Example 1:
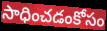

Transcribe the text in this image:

సాధించడంకోసం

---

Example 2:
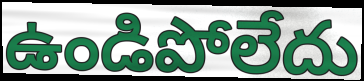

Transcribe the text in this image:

ఉండిపోలేదు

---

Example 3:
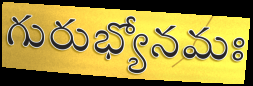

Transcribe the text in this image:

గురుభ్యోనమః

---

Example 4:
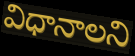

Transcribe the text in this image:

విధానాలని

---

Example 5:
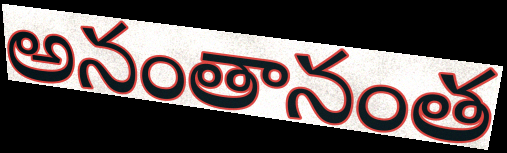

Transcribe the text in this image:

అనంతానంత